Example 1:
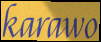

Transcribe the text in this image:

karawo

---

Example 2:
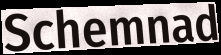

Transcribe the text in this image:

Schemnad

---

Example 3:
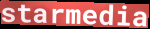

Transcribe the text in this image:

starmedia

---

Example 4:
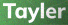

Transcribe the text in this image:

Tayler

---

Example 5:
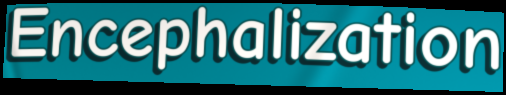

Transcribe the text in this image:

Encephalization